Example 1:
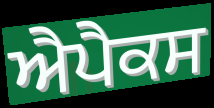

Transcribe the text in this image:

ਐਪੈਕਸ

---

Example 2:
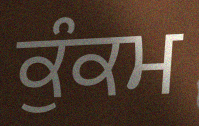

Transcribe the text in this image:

ਕੁੰਕਮ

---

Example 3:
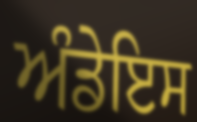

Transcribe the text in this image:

ਅੰਡੇਇਸ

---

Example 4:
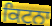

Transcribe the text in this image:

ਕਿਟਨਾ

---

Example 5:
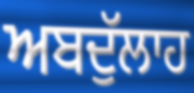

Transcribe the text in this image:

ਅਬਦੁੱਲਾਹ